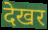
देखर